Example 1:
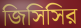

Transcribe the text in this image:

জিসিসির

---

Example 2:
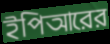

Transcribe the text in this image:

ইপিআরের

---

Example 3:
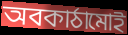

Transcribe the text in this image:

অবকাঠামোই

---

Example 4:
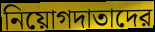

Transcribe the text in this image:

নিয়োগদাতাদের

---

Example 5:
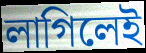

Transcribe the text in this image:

লাগিলেই